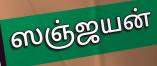
ஸஞ்ஜயன்